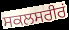
ਸਕਲਸਰੀਰਂ